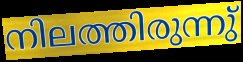
നിലത്തിരുന്നു്